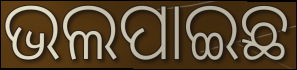
ଭଲପାଇଛ